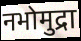
नभोमुद्रा